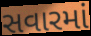
સવારમાં